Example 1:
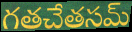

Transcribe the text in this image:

గతచేతసమ్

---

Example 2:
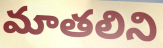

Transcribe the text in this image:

మాతలిని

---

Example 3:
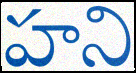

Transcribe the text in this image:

హని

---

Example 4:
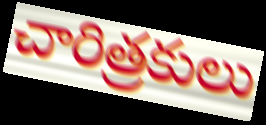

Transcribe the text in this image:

చారిత్రకులు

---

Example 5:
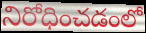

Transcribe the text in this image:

నిరోధించడంలో